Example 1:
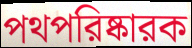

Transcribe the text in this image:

পথপরিষ্কারক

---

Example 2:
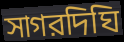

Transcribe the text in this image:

সাগরদিঘি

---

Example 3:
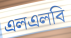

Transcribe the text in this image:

এলএলবি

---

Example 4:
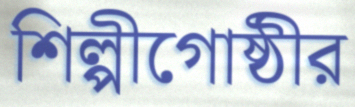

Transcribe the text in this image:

শিল্পীগোষ্ঠীর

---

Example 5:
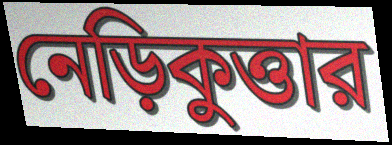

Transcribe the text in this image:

নেড়িকুত্তার